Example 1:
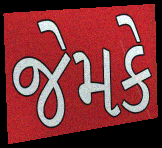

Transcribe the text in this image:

જેમકે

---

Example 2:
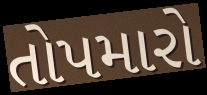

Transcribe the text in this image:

તોપમારો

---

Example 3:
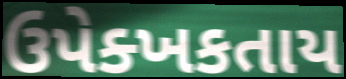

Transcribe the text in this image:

ઉપેક્ખકતાય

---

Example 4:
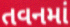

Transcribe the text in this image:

તવનમાં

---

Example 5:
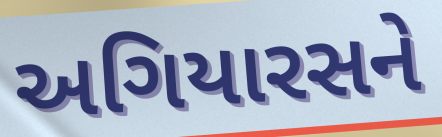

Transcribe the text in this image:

અગિયારસને